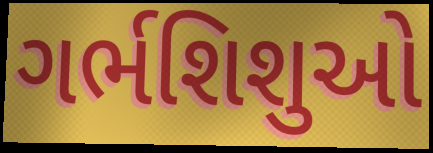
ગર્ભશિશુઓ